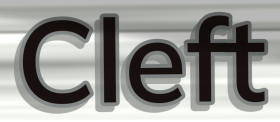
Cleft